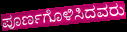
ಪೂರ್ಣಗೊಳಿಸಿದವರು